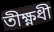
তীক্ষ্ণধী